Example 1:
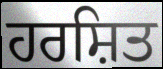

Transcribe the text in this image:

ਹਰਸ਼ਿਤ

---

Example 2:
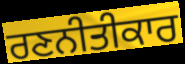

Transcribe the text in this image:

ਰਣਨੀਤੀਕਾਰ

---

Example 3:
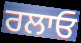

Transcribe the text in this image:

ਰਲਾਓ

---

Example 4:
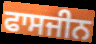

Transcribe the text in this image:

ਫਾਸਜੀਨ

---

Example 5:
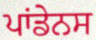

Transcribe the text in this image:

ਪਾਂਡੇਨਸ